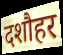
दशौहर